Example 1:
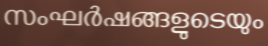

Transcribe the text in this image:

സംഘർഷങ്ങളുടെയും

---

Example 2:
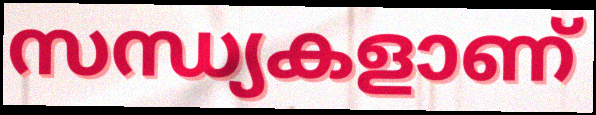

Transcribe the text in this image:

സന്ധ്യകളാണ്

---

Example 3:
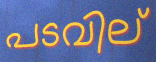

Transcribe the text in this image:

പടവില്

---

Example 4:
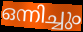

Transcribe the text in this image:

ഒന്നിച്ചും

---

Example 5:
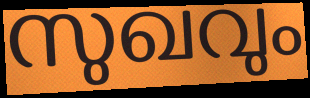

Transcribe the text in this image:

സുഖവും